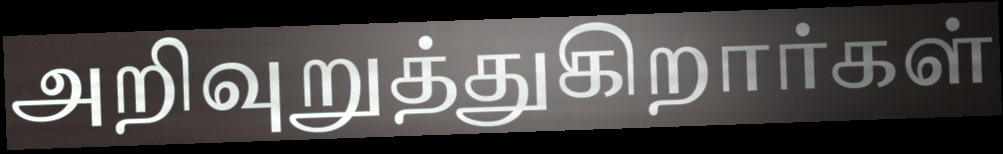
அறிவுறுத்துகிறார்கள்